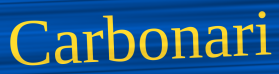
Carbonari